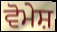
ਵੋਮੇਸ਼